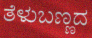
ತೆಳುಬಣ್ಣದ